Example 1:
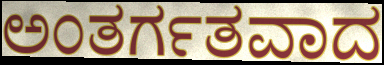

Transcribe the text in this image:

ಅಂತರ್ಗತವಾದ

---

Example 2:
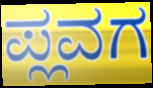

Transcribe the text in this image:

ಪ್ಲವಗ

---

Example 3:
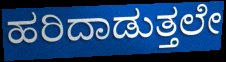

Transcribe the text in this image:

ಹರಿದಾಡುತ್ತಲೇ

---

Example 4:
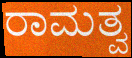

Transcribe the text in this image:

ರಾಮತ್ವ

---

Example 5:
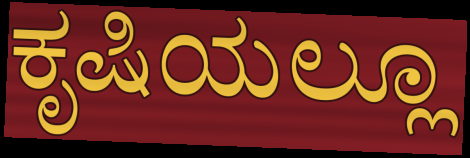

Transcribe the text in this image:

ಕೃಷಿಯಲ್ಲೂ